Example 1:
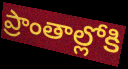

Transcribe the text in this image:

ప్రాంతాల్లోకి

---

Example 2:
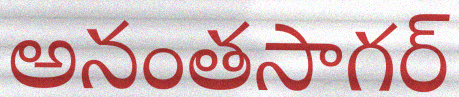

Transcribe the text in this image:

అనంతసాగర్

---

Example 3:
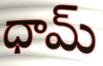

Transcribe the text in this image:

ధామ్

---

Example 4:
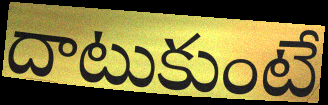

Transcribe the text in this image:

దాటుకుంటే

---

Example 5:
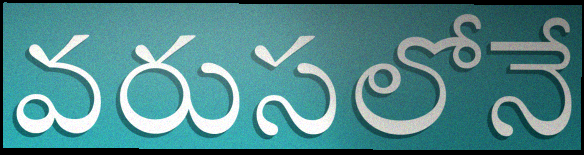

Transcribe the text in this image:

వరుసలోనే